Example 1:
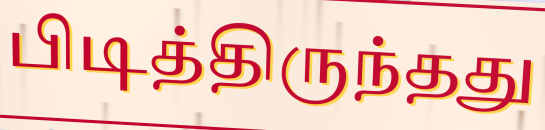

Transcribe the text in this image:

பிடித்திருந்தது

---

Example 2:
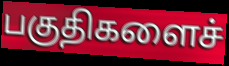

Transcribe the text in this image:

பகுதிகளைச்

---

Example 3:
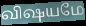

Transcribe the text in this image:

விஷயமே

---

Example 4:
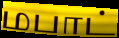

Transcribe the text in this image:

மபாட்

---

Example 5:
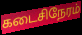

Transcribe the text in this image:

கடைசிநேரம்